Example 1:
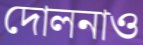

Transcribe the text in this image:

দোলনাও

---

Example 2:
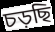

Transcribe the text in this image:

চড়ছি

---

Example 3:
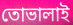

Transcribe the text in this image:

তোভালাই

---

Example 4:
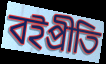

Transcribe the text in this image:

বইপ্রীতি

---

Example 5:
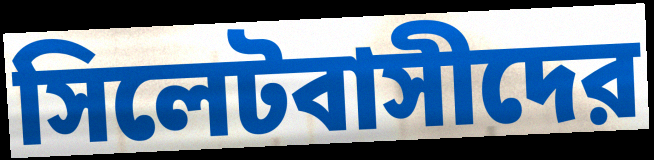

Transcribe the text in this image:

সিলেটবাসীদের